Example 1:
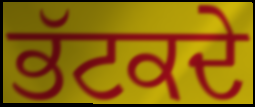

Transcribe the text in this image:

ਭੱਟਕਦੇ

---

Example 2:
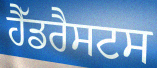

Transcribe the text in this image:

ਹੈੱਡਰੈਸਟਸ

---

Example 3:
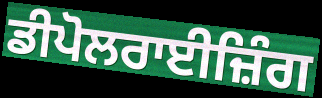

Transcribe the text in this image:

ਡੀਪੋਲਰਾਈਜ਼ਿੰਗ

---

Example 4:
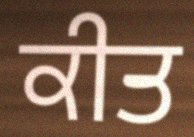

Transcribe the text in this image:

ਕੀਤ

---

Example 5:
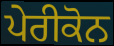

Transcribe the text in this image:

ਪੇਰੀਕੋਨ